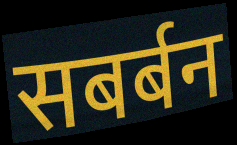
सबर्बन